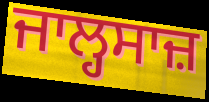
ਜਾਲ੍ਹਸਾਜ਼